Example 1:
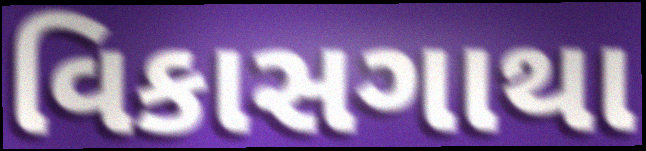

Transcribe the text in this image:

વિકાસગાથા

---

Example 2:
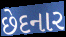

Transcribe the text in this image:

છેદનાર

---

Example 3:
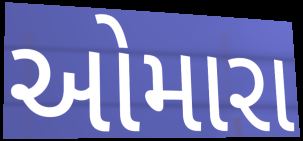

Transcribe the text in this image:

ઓમારા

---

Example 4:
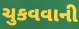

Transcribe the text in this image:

ચુકવવાની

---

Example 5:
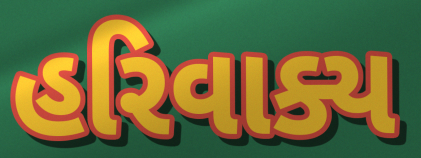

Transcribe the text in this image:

હરિવાક્ય